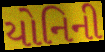
યોનિની